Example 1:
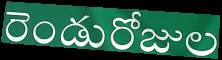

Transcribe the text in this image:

రెండురోజుల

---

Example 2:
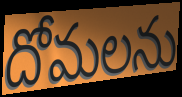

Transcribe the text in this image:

దోమలను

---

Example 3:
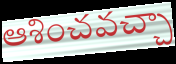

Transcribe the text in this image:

ఆశించవచ్చా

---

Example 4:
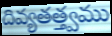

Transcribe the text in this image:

దివ్యతత్త్వము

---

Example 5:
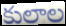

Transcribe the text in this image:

కులాల